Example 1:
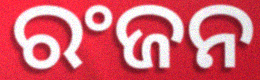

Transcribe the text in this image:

ରଂଜନ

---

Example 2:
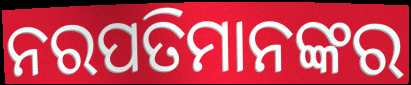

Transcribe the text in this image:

ନରପତିମାନଙ୍କର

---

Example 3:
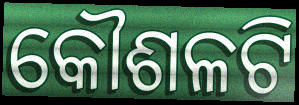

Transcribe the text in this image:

କୌଶଳଟି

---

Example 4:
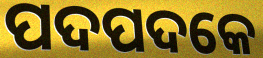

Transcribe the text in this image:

ପଦପଦକେ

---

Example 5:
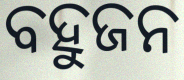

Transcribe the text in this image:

ବହୁଜନ